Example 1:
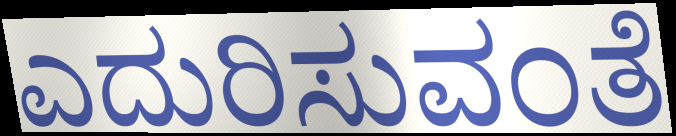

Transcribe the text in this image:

ಎದುರಿಸುವಂತೆ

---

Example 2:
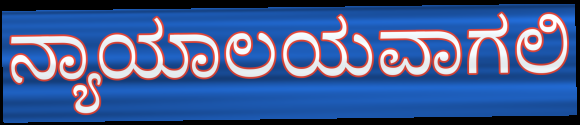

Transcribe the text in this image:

ನ್ಯಾಯಾಲಯವಾಗಲಿ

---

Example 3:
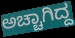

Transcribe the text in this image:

ಅಚ್ಚಾಗಿದ್ದ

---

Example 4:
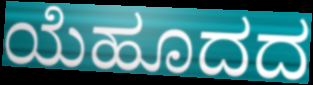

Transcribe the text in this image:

ಯೆಹೂದದ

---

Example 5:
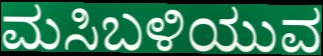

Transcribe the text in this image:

ಮಸಿಬಳಿಯುವ